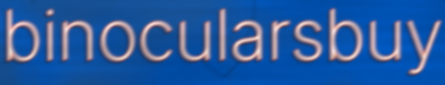
binocularsbuy